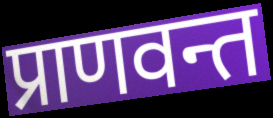
प्राणवन्त